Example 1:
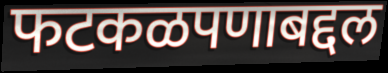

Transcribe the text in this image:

फटकळपणाबद्दल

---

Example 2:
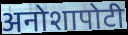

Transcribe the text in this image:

अनोशापोटी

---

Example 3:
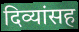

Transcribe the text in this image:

दिव्यांसह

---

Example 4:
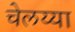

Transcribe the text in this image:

चेलय्या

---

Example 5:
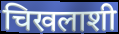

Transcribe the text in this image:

चिखलाशी